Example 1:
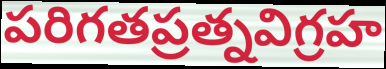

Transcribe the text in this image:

పరిగతప్రత్నవిగ్రహ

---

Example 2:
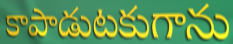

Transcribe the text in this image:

కాపాడుటకుగాను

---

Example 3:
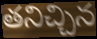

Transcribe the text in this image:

తనిచ్చిన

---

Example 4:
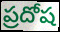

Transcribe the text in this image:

ప్రదోష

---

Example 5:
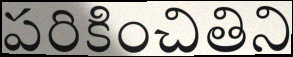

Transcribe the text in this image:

పరికించితిని